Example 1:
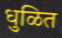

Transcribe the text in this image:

धुळित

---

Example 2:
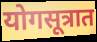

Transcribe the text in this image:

योगसूत्रात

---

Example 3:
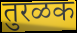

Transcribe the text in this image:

तुरळक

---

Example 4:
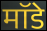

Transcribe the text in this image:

मॉडे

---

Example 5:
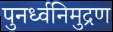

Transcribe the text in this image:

पुनर्ध्वनिमुद्रण